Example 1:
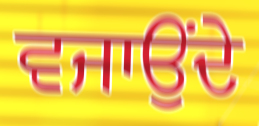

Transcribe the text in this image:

ਵਜਾਉਂਦੇ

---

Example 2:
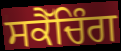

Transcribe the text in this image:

ਸਕੈੱਚਿੰਗ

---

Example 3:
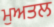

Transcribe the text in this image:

ਮੁਅਤਲ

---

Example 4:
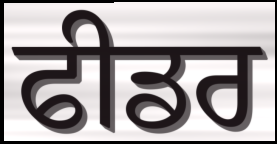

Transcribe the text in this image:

ਫੀਡਰ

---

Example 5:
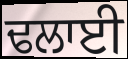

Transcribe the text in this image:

ਢਲਾਈ